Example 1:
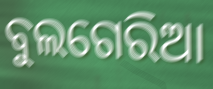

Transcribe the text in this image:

ବୁଲଗେରିଆ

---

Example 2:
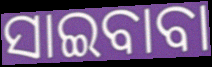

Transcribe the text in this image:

ସାଇବାବା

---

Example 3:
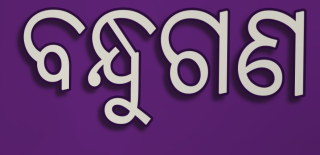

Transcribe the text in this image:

ବନ୍ଧୁଗଣ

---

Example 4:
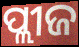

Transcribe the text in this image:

ପ୍ଲୀଜ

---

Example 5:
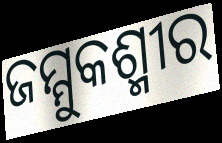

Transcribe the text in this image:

ଜମ୍ମୁକଶ୍ମୀର